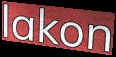
lakon